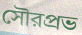
সৌরপ্রভ